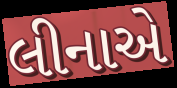
લીનાએ